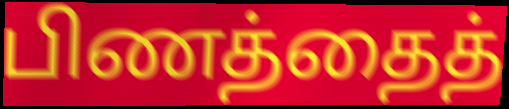
பிணத்தைத்